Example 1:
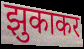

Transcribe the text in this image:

झुकाकर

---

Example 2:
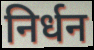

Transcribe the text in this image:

निर्धन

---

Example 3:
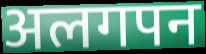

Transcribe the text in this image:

अलगपन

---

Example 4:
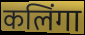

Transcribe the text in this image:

कलिंगा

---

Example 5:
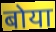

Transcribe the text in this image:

बोया